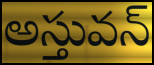
అస్తువన్